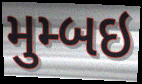
મુમ્બઇ